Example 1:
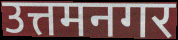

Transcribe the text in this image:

उत्तमनगर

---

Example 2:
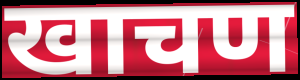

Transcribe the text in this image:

खाचण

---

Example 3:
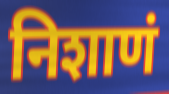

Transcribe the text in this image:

निशाणं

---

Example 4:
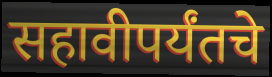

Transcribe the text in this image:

सहावीपर्यंतचे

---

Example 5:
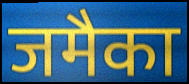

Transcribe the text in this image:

जमैका